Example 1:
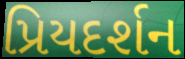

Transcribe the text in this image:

પ્રિયદર્શન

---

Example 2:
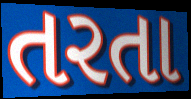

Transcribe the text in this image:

તરતા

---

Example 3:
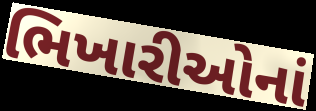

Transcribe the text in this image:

ભિખારીઓનાં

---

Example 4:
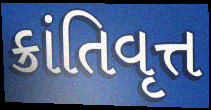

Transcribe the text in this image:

ક્રાંતિવૃત્ત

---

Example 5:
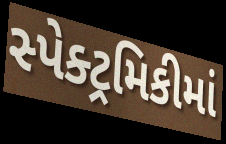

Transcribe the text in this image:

સ્પેક્ટ્રમિકીમાં